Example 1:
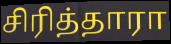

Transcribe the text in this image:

சிரித்தாரா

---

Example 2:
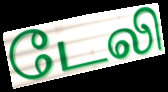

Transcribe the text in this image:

டேலி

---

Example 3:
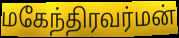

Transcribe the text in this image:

மகேந்திரவர்மன்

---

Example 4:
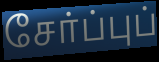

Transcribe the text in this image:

சேர்ப்புப்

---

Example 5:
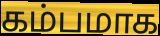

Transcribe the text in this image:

கம்பமாக